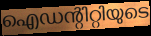
ഐഡന്റിറ്റിയുടെ